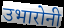
उभारोनी